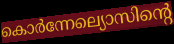
കൊർന്നേല്യൊസിന്റെ